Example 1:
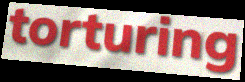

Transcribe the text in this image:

torturing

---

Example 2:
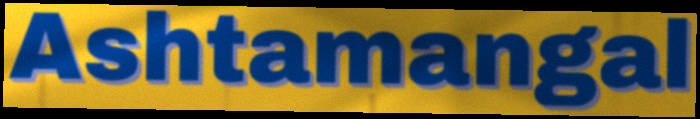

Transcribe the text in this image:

Ashtamangal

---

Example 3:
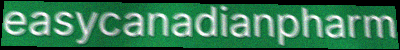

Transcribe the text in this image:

easycanadianpharm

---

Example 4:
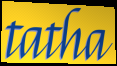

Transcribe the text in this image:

tatha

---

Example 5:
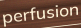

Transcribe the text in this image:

perfusion